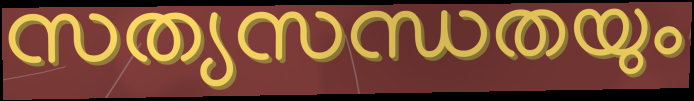
സത്യസന്ധതയും